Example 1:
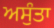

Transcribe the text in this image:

ਅਸੁੰਤਾ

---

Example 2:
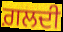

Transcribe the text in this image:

ਗ਼ਲਦੀ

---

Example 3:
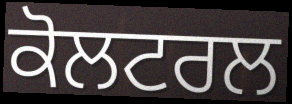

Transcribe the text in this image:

ਕੋਲਟਰਲ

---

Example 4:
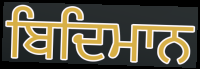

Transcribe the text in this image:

ਬਿਦਿਮਾਨ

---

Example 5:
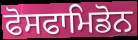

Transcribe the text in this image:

ਫੋਸਫਾਮਿਡੋਨ